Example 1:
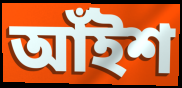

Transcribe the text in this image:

আঁইশ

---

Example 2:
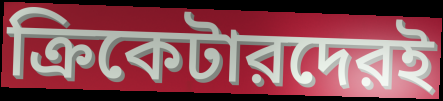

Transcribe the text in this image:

ক্রিকেটারদেরই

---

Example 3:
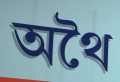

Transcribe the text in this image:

অথৈ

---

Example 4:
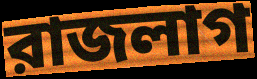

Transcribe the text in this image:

রাজলাগ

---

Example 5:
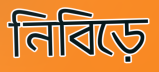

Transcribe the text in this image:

নিবিড়ে